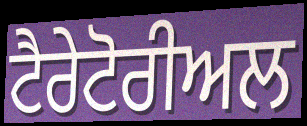
ਟੈਰੇਟੋਰੀਅਲ